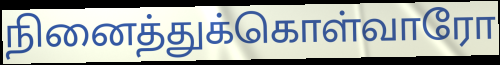
நினைத்துக்கொள்வாரோ